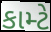
કામ્ટે